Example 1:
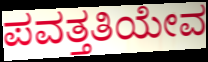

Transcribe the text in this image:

ಪವತ್ತತಿಯೇವ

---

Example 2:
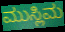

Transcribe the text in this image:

ಮುಸ್ಲಿಮ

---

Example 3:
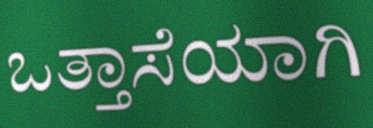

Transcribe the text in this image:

ಒತ್ತಾಸೆಯಾಗಿ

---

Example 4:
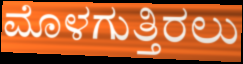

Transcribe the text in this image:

ಮೊಳಗುತ್ತಿರಲು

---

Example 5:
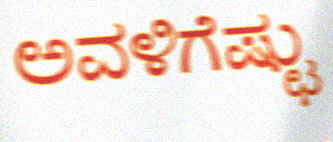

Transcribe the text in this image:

ಅವಳಿಗೆಷ್ಟು